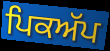
ਪਿਕਅੱਪ